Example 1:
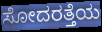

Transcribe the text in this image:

ಸೋದರತ್ತೆಯ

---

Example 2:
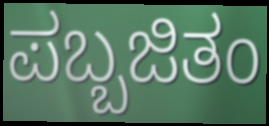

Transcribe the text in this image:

ಪಬ್ಬಜಿತಂ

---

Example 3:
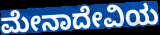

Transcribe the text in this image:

ಮೇನಾದೇವಿಯ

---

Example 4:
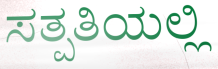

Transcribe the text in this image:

ಸತ್ಪತಿಯಲ್ಲಿ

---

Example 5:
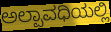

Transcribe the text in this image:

ಅಲ್ಪಾವಧಿಯಲ್ಲಿ